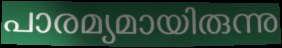
പാരമ്യമായിരുന്നു